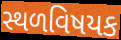
સ્થળવિષયક